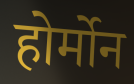
होर्मोन